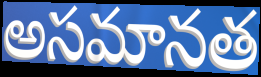
అసమానత